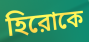
হিরোকে